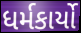
ધર્મકાર્યો